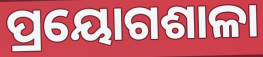
ପ୍ରୟୋଗଶାଳା